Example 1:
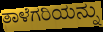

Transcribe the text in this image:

ತಾಳೆಗರಿಯನ್ನು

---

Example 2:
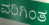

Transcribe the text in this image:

ವರಿಗಿಂತ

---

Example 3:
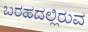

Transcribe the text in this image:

ಬರಹದಲ್ಲಿರುವ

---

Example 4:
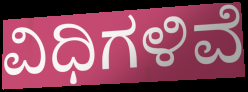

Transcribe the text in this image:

ವಿಧಿಗಳಿವೆ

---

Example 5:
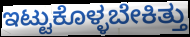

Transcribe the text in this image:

ಇಟ್ಟುಕೊಳ್ಳಬೇಕಿತ್ತು